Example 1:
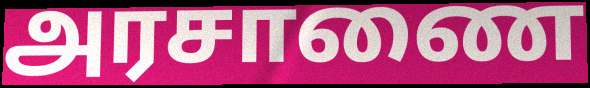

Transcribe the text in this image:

அரசாணை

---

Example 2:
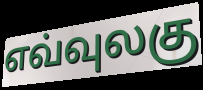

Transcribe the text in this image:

எவ்வுலகு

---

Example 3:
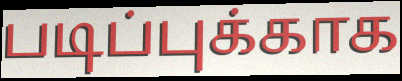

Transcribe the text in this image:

படிப்புக்காக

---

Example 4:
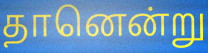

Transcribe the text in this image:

தானென்று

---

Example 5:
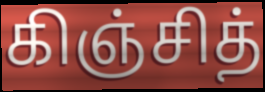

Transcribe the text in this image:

கிஞ்சித்